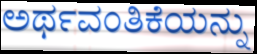
ಅರ್ಥವಂತಿಕೆಯನ್ನು